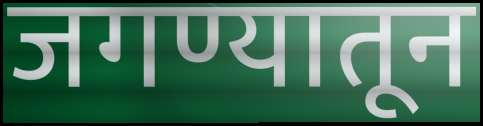
जगण्यातून